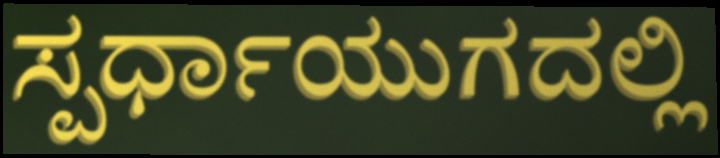
ಸ್ಪರ್ಧಾಯುಗದಲ್ಲಿ